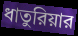
ধাতুরিয়ার